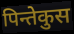
पिन्तेकुस